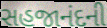
સહજાનંદની